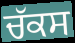
ਚੱਕਸ